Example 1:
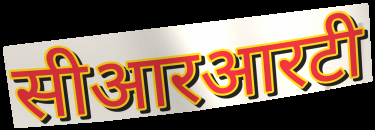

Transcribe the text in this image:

सीआरआरटी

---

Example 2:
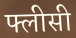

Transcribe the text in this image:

फ्लीसी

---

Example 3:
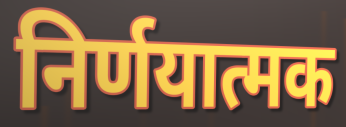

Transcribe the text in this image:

निर्णयात्मक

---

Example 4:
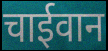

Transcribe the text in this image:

चाईवान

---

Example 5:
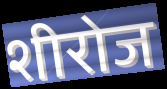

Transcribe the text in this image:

शीरोज